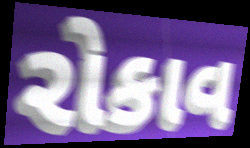
રોકાવ